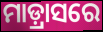
ମାଡ଼୍ରାସରେ